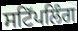
ਸਟਿੱਪਲਿੰਗ